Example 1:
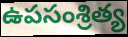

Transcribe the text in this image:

ఉపసంశ్రిత్య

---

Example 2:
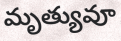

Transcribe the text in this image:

మృత్యువూ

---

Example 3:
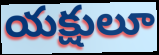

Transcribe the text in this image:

యక్షులూ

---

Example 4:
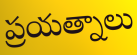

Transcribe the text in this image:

ప్రయత్నాలు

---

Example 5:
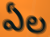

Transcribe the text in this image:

ఏల